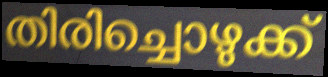
തിരിച്ചൊഴുക്ക്